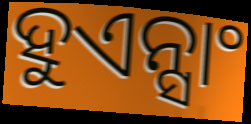
ହୁଏନ୍ସାଂ